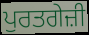
ਪੁਰਤਗੇਜ਼ੀ